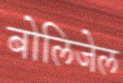
बोलिजेल